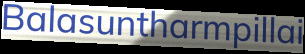
Balasuntharmpillai